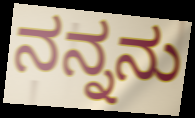
ನನ್ನನು